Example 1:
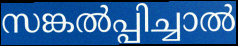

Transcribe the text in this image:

സങ്കൽപ്പിച്ചാൽ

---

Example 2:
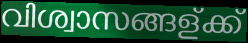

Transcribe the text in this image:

വിശ്വാസങ്ങള്ക്ക്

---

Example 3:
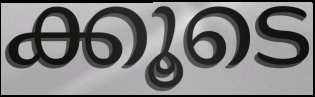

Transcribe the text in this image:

ക്കൂടെ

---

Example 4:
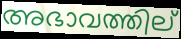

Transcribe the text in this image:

അഭാവത്തില്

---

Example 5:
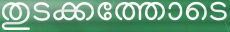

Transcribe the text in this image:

തുടക്കത്തോടെ